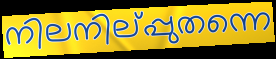
നിലനില്പ്പുതന്നെ